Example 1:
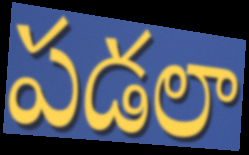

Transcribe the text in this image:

పడలా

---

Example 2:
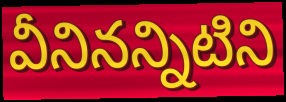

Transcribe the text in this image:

వీనినన్నిటిని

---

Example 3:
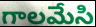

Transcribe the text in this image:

గాలమేసి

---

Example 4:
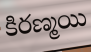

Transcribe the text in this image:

కిరణ్మయి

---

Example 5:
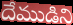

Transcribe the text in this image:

దేముడిని